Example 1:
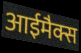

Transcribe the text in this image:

आईमैक्स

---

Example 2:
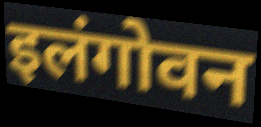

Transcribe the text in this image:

इलंगोवन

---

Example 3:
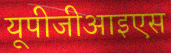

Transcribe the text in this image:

यूपीजीआइएस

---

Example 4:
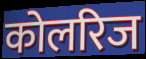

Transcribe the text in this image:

कोलरिज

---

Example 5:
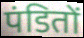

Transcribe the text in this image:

पंडितों